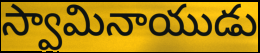
స్వామినాయుడు